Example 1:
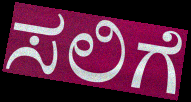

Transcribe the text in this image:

ಸಲಿಗೆ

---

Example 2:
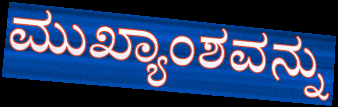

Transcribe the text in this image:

ಮುಖ್ಯಾಂಶವನ್ನು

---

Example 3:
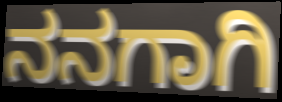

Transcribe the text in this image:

ನನಗಾಗಿ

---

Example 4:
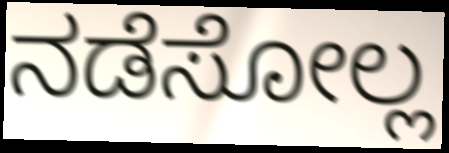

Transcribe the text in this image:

ನಡೆಸೋಲ್ಲ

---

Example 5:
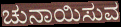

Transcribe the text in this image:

ಚುನಾಯಿಸುವ